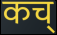
कच्